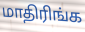
மாதிரிங்க